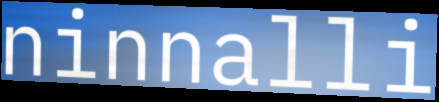
ninnalli